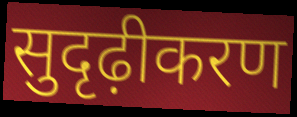
सुदृढ़ीकरण